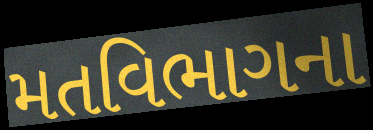
મતવિભાગના